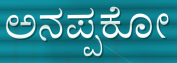
ಅನಪ್ಪಕೋ